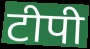
टीपी